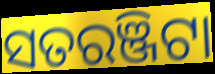
ସତରଞ୍ଜିଟା